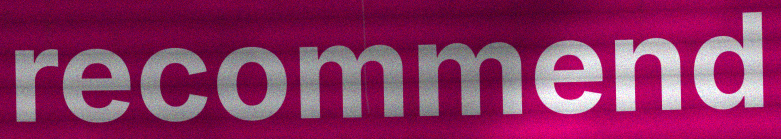
recommend